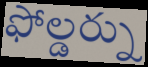
ఫోల్డర్ను